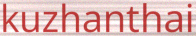
kuzhanthai